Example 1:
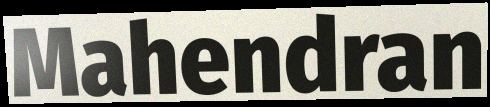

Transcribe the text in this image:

Mahendran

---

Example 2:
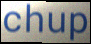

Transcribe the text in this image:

chup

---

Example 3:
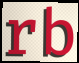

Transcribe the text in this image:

rb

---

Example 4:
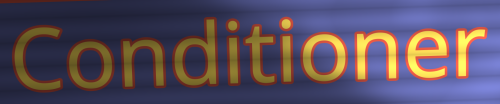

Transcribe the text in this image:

Conditioner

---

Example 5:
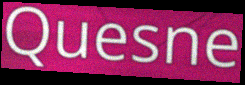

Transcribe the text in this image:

Quesne